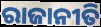
ରାଜାନୀତି